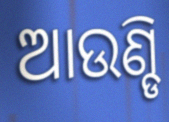
ଆଉଣ୍ଡି